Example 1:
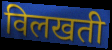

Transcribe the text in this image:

विलखती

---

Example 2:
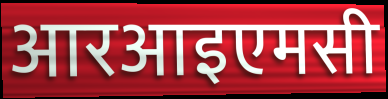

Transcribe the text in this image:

आरआइएमसी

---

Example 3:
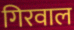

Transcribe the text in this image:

गिरवाल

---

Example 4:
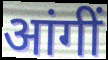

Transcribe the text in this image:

आंगीं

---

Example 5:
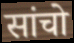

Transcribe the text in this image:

सांचो